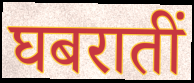
घबरातीं